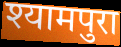
श्यामपुरा